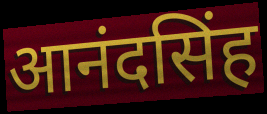
आनंदसिंह